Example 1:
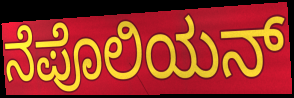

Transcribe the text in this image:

ನೆಪೊಲಿಯನ್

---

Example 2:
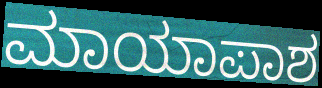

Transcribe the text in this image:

ಮಾಯಾಪಾಶ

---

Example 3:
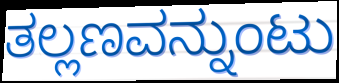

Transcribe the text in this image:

ತಲ್ಲಣವನ್ನುಂಟು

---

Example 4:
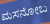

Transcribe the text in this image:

ಮಸನೋಬ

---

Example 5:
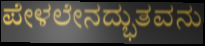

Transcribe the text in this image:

ಪೇಳಲೇನದ್ಭುತವನು